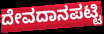
ದೇವದಾನಪಟ್ಟಿ